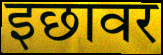
इछावर